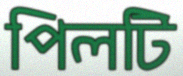
পিলটি